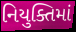
નિયુક્તિમાં